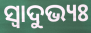
ସ୍ବାଦୁଭ୍ୟଃ